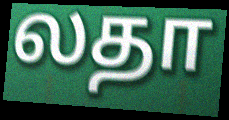
லதா